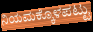
ನಿಯಮಕ್ಕೊಳಪಟ್ಟು